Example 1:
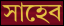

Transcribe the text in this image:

সাহেব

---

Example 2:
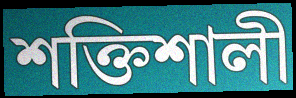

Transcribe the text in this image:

শক্তিশালী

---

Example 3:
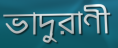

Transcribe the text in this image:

ভাদুরাণী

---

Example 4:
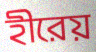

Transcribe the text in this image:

হীরেয়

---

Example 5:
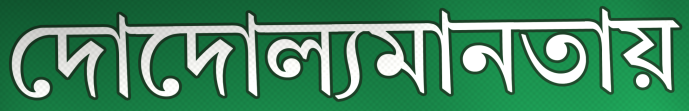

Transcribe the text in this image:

দোদোল্যমানতায়